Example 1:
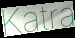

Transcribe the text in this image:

Katra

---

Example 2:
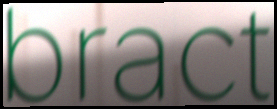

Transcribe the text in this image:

bract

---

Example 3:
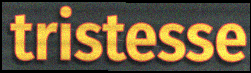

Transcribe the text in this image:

tristesse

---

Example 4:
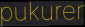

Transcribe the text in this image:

pukurer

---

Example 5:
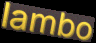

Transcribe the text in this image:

lambo